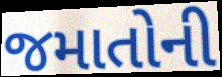
જમાતોની